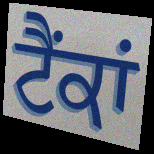
ਟੈਂਕਾਂ